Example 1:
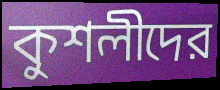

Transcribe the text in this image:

কুশলীদের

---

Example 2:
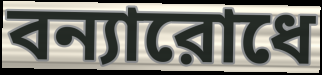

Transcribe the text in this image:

বন্যারোধে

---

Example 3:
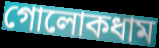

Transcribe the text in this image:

গোলোকধাম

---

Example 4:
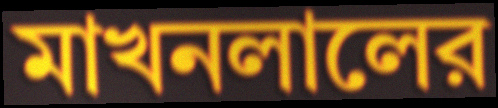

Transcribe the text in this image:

মাখনলালের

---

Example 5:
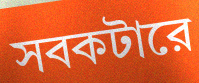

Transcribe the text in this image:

সবকটারে